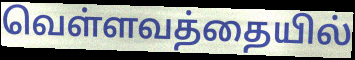
வெள்ளவத்தையில்